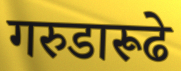
गरुडारूढे